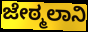
ಜೇಠ್ಮಲಾನಿ